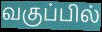
வகுப்பில்